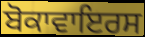
ਬੋਕਾਵਾਇਰਸ